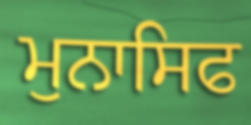
ਮੁਨਾਸਿਫ